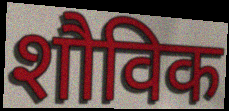
शौविक